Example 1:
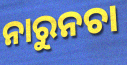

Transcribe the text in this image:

ନାରୁନଚା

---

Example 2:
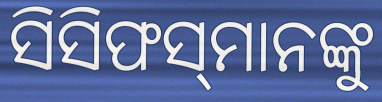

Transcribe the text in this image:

ସିସିଫସ୍‌ମାନଙ୍କୁ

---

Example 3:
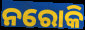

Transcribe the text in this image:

ନରୋକି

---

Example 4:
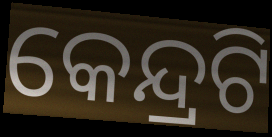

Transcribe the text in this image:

କେନ୍ଦ୍ରଟି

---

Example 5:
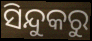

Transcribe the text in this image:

ସିନ୍ଦୁକରୁ